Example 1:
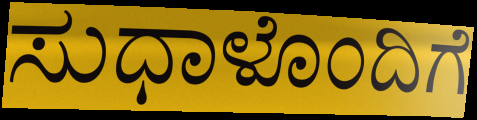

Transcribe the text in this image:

ಸುಧಾಳೊಂದಿಗೆ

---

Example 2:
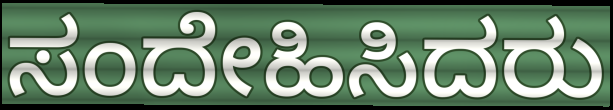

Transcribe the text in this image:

ಸಂದೇಹಿಸಿದರು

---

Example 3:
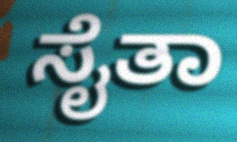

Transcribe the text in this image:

ಸೈತಾ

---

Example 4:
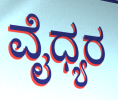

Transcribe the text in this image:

ವೈಧ್ಯರ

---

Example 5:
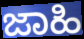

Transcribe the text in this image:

ಜಾಹಿ